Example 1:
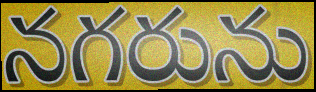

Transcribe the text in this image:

నగరును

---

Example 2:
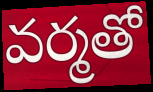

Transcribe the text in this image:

వర్మతో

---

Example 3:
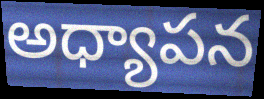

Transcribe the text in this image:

అధ్యాపన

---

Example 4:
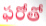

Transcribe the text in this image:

ఫరోతో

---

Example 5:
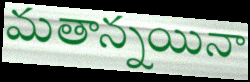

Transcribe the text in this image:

మతాన్నయినా